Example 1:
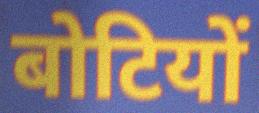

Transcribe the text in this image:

बोटियों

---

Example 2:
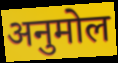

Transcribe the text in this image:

अनुमोल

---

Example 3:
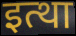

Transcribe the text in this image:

इत्था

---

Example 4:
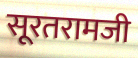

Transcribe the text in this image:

सूरतरामजी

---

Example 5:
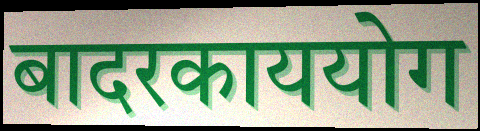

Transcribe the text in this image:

बादरकाययोग